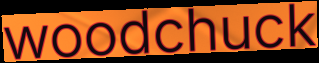
woodchuck